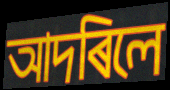
আদৰিলে